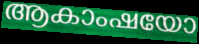
ആകാംഷയോ